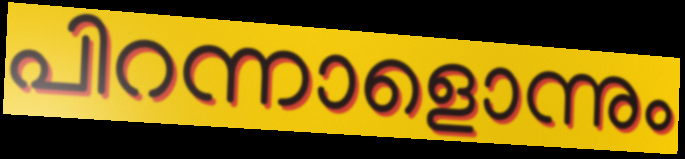
പിറന്നാളൊന്നും